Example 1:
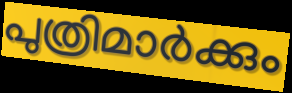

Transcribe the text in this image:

പുത്രിമാർക്കും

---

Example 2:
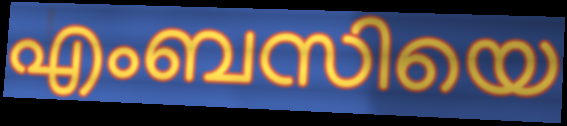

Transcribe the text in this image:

എംബസിയെ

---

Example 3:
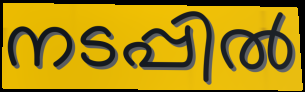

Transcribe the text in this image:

നടപ്പിൽ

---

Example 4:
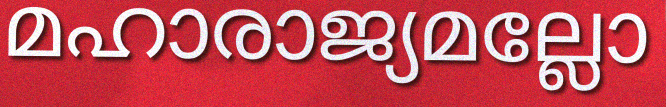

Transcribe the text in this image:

മഹാരാജ്യമല്ലോ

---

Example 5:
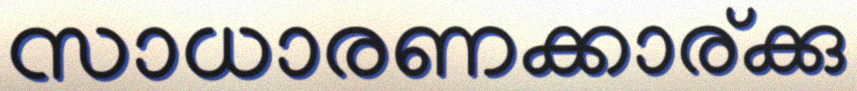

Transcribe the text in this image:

സാധാരണക്കാര്ക്കു